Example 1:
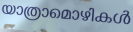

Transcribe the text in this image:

യാത്രാമൊഴികൾ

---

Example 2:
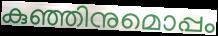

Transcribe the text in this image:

കുഞ്ഞിനുമൊപ്പം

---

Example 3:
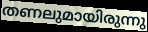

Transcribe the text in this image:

തണലുമായിരുന്നു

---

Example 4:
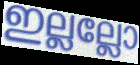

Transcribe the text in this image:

ഇല്ലല്ലോ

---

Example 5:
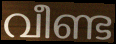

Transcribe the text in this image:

വീണ്ട